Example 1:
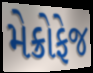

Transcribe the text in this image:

મેક્રોફેજ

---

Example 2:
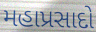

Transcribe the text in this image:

મહાપ્રસાદો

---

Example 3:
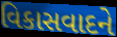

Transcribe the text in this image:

વિકાસવાદને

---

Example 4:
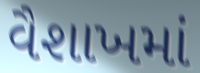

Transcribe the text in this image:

વૈશાખમાં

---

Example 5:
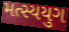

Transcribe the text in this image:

મત્સ્યયુગ